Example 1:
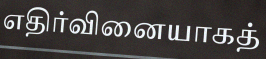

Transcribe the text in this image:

எதிர்வினையாகத்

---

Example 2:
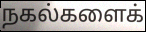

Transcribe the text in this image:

நகல்களைக்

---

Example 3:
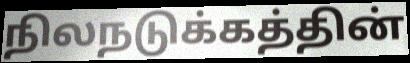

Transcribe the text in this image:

நிலநடுக்கத்தின்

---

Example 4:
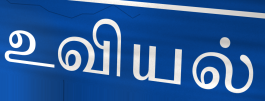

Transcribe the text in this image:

உவியல்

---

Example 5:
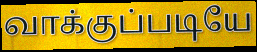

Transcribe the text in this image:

வாக்குப்படியே